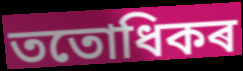
ততোধিকৰ